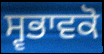
ਸ੍ਵਭਾਵਕੋ